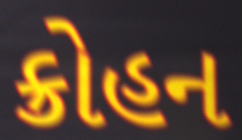
ક્રોહન